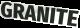
GRANITE